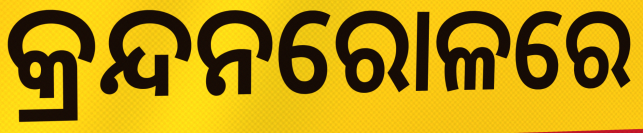
କ୍ରନ୍ଦନରୋଳରେ